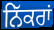
ਨਿੱਕਰਾਂ